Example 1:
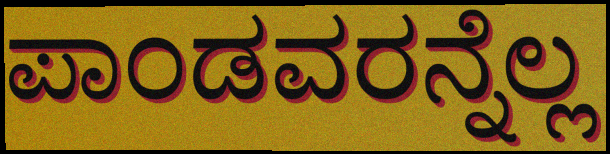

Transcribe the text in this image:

ಪಾಂಡವರನ್ನೆಲ್ಲ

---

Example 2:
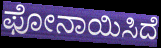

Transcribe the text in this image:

ಫೋನಾಯಿಸಿದೆ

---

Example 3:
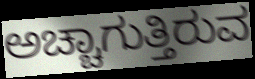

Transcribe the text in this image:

ಅಚ್ಚಾಗುತ್ತಿರುವ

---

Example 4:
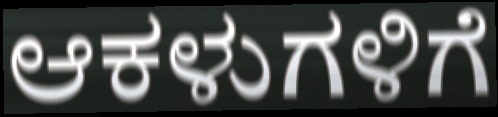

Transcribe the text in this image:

ಆಕಳುಗಳಿಗೆ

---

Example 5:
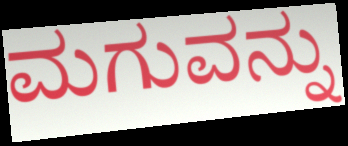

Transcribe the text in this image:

ಮಗುವನ್ನು